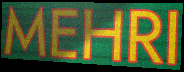
MEHRI